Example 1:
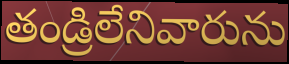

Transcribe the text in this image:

తండ్రిలేనివారును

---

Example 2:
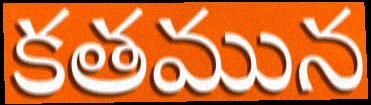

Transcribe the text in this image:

కతమున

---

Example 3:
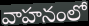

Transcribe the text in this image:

వాహనంలో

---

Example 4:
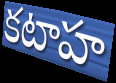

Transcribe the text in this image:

కటాహ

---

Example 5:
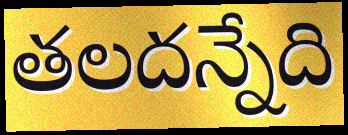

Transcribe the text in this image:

తలదన్నేది